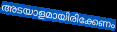
അടയാളമായിരിക്കേണം